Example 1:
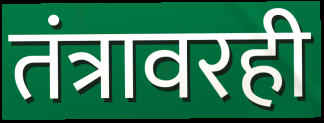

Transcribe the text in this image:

तंत्रावरही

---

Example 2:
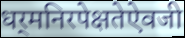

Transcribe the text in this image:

धर्मनिरपेक्षतेऐवजी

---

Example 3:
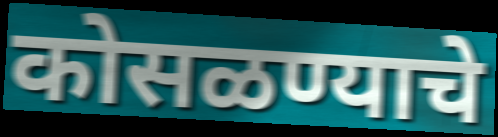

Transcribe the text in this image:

कोसळण्याचे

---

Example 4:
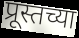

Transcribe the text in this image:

प्रूस्तच्या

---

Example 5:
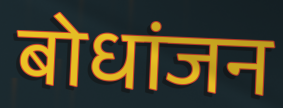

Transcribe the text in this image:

बोधांजन